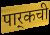
पार्कची